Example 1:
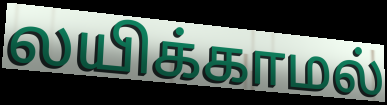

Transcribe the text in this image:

லயிக்காமல்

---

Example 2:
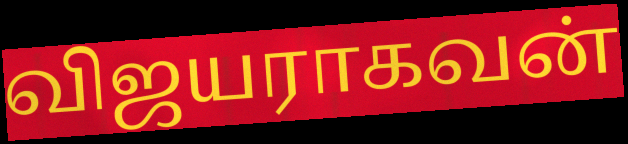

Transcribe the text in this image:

விஜயராகவன்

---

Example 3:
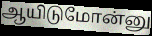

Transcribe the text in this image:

ஆயிடுமோன்னு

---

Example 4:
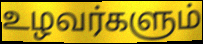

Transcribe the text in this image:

உழவர்களும்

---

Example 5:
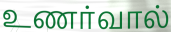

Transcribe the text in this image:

உணர்வால்